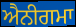
ਐਨੀਗਮਾ